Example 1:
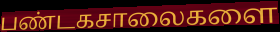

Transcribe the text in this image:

பண்டகசாலைகளை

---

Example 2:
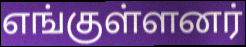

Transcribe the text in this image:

எங்குள்ளனர்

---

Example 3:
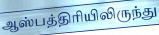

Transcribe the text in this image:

ஆஸ்பத்திரியிலிருந்து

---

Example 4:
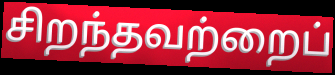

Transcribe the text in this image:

சிறந்தவற்றைப்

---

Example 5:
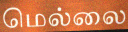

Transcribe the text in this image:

மெல்லை